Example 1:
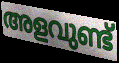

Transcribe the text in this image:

അളവുണ്ട്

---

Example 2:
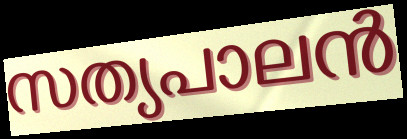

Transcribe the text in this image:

സത്യപാലൻ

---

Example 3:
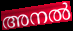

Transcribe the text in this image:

അനൽ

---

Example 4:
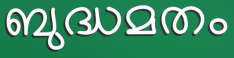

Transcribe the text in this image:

ബുദ്ധമതം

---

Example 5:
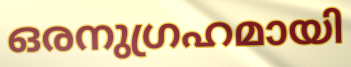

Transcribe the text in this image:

ഒരനുഗ്രഹമായി